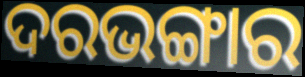
ଦରଭଙ୍ଗାର